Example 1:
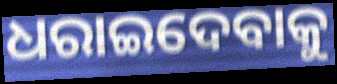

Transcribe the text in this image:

ଧରାଇଦେବାକୁ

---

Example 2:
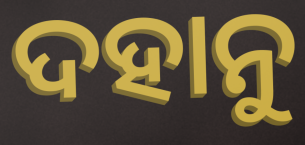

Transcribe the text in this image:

ଦହାନୁ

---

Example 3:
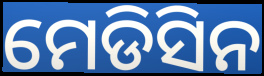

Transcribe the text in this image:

ମେଡିସିନ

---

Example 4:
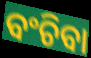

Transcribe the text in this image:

ବଂଚିବା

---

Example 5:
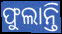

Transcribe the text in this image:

ଫୁଲାନ୍ତି